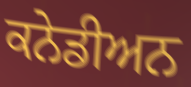
ਕਨੇਡੀਅਨ